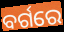
ବର୍ଗରେ